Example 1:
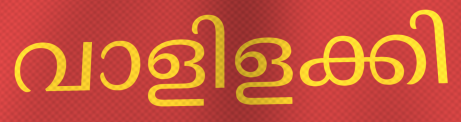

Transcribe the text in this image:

വാളിളക്കി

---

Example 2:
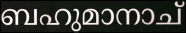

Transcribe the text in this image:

ബഹുമാനാച്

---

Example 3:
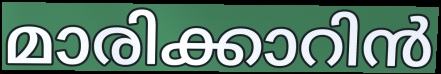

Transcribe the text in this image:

മാരിക്കാറിൻ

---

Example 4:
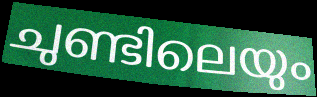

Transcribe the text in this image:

ചുണ്ടിലെയും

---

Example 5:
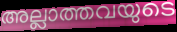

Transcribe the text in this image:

അല്ലാത്തവയുടെ